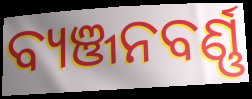
ବ୍ୟଞ୍ଜନବର୍ଣ୍ଣ